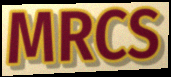
MRCS